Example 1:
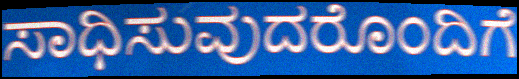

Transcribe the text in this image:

ಸಾಧಿಸುವುದರೊಂದಿಗೆ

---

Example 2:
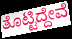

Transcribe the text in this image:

ತೊಟ್ಟಿದ್ದೇವೆ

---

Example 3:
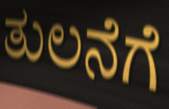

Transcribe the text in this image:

ತುಲನೆಗೆ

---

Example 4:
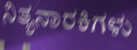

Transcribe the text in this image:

ನಿತ್ಯನಾರಕಿಗಳು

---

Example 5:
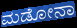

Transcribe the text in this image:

ಮಡೋನಾ